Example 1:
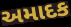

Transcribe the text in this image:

અમાદક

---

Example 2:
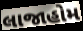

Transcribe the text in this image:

લાજાહોમ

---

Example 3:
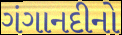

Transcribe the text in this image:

ગંગાનદીનો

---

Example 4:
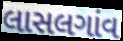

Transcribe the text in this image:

લાસલગાંવ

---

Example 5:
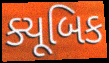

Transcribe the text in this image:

ક્યૂબિક